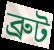
ব্রুট